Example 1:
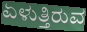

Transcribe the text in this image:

ಏಳುತ್ತಿರುವ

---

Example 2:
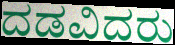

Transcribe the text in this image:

ದಡವಿದರು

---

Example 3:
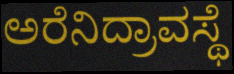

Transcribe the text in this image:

ಅರೆನಿದ್ರಾವಸ್ಥೆ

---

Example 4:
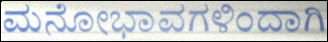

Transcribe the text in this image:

ಮನೋಭಾವಗಳಿಂದಾಗಿ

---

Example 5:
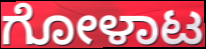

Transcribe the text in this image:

ಗೋಳಾಟ